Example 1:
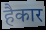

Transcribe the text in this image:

हैकार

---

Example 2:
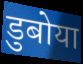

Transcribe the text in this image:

डुबोया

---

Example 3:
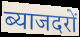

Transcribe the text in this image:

ब्याजदरों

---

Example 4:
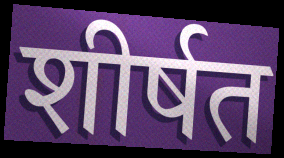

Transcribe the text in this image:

शीर्षत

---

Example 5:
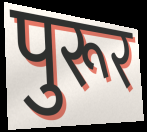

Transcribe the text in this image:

पुरूर